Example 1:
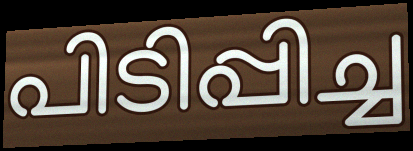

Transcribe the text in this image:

പിടിപ്പിച്ച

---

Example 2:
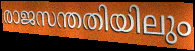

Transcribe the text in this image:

രാജസന്തതിയിലും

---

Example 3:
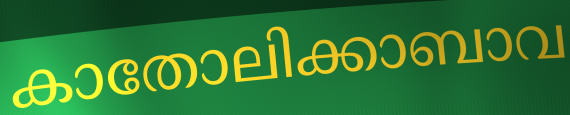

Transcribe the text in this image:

കാതോലിക്കാബാവ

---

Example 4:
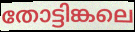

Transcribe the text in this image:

തോട്ടിങ്കലെ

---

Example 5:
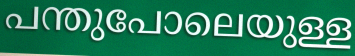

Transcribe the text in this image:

പന്തുപോലെയുള്ള